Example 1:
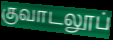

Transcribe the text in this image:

குவாடலூப்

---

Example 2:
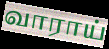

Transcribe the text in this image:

வாராய்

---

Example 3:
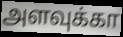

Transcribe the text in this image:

அளவுக்கா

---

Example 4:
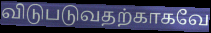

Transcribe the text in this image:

விடுபடுவதற்காகவே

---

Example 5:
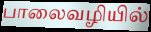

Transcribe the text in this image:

பாலைவழியில்